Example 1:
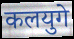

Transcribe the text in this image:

कलयुगे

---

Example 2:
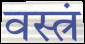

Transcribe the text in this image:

वस्त्रं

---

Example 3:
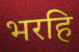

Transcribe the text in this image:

भरहि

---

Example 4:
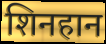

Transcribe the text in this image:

शिनहान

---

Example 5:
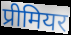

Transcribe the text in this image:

प्रीमियर